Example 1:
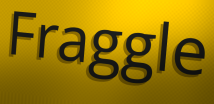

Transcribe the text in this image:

Fraggle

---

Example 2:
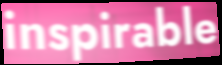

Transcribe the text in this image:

inspirable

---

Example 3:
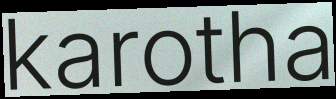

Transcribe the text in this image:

karotha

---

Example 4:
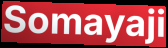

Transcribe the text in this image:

Somayaji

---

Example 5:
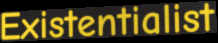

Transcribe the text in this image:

Existentialist